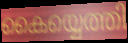
കൈയ്യെത്തി